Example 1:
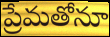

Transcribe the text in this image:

ప్రేమతోనూ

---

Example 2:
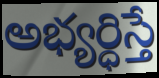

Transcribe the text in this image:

అభ్యర్ధిస్తే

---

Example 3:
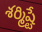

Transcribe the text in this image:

శర్మిష్టే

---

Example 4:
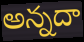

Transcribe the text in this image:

అన్నదా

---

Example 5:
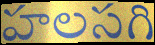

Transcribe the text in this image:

హలసగి